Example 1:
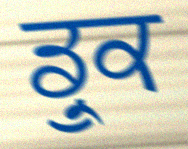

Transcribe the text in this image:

ਡ੍ਰੁਕ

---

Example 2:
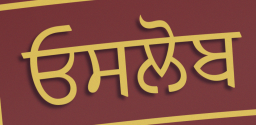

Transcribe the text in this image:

ਓਸਲੋਬ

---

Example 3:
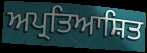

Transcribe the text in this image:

ਅਪ੍ਰਤਿਆਸ਼ਿਤ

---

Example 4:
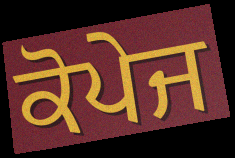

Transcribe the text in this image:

ਕੋਪੇਜ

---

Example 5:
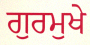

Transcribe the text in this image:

ਗੁਰਮੁਖੇ